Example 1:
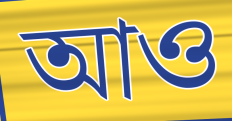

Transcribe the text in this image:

আও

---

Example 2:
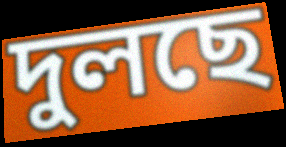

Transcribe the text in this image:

দুলছে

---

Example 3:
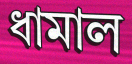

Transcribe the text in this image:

ধামাল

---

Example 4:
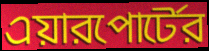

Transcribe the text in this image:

এয়ারপোর্টের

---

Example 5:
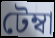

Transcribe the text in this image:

টেম্বা